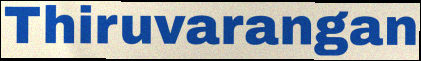
Thiruvarangan